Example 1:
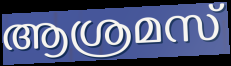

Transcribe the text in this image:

ആശ്രമസ്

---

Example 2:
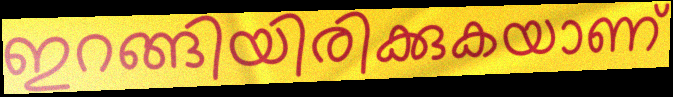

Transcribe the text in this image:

ഇറങ്ങിയിരിക്കുകയാണ്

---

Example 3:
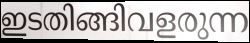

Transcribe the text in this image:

ഇടതിങ്ങിവളരുന്ന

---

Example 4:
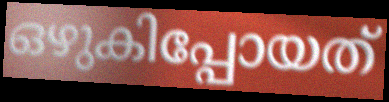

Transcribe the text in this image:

ഒഴുകിപ്പോയത്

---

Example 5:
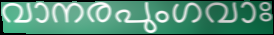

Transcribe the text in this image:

വാനരപുംഗവാഃ